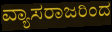
ವ್ಯಾಸರಾಜರಿಂದ